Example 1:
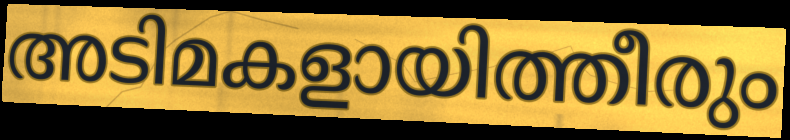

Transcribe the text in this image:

അടിമകളായിത്തീരും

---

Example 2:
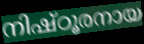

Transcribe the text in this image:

നിഷ്ഠൂരനായ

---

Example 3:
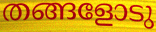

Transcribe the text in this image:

തങ്ങളോടു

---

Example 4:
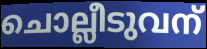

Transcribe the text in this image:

ചൊല്ലീടുവന്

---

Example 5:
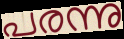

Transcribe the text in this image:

പരന്നു